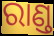
ରାଣ୍ଡ